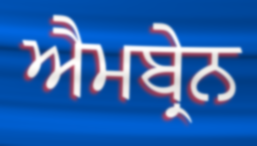
ਐਮਬ੍ਰੇਨ